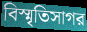
বিস্মৃতিসাগর